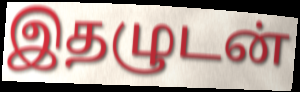
இதழுடன்